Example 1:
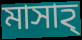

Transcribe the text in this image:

মাসাহ্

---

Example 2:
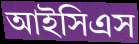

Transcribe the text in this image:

আইসিএস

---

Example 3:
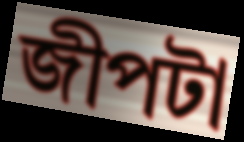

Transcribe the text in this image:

জীপটা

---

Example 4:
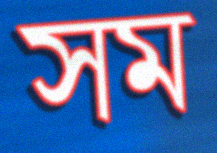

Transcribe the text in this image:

সম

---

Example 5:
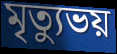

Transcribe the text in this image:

মৃত্যুভয়